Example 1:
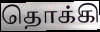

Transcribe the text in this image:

தொக்கி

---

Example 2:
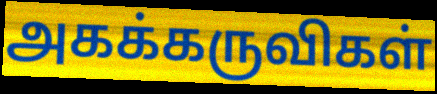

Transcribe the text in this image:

அகக்கருவிகள்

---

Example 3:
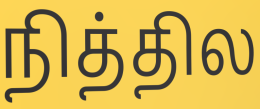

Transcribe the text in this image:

நித்தில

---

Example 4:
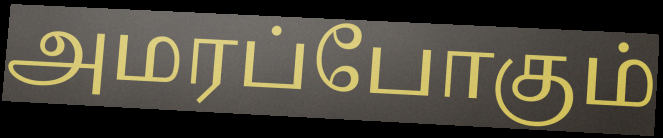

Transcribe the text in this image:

அமரப்போகும்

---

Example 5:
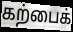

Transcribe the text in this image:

கற்பைக்